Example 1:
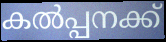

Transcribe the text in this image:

കൽപ്പനക്ക്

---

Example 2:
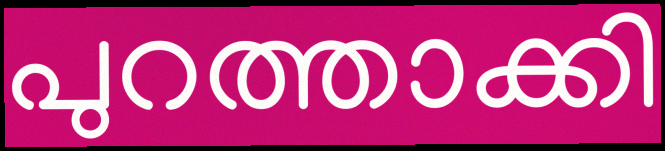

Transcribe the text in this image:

പുറത്താക്കി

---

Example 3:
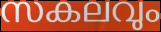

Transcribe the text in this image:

സകലവും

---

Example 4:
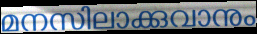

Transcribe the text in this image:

മനസിലാക്കുവാനും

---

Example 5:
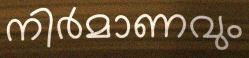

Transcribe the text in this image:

നിർമാണവും